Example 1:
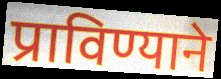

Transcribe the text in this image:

प्राविण्याने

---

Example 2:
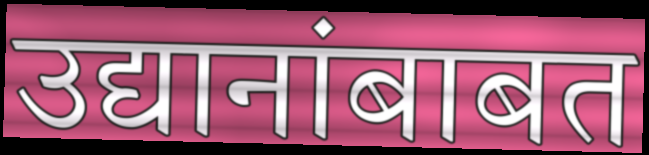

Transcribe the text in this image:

उद्यानांबाबत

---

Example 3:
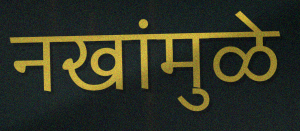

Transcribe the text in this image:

नखांमुळे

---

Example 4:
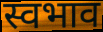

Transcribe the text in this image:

स्वभाव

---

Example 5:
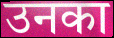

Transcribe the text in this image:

उनका